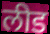
लीड